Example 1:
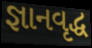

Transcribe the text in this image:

જ્ઞાનવૃદ્ધ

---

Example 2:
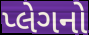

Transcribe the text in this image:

પ્લેગનો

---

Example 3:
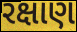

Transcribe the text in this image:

રક્ષાણ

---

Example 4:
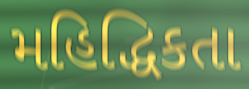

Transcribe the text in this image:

મહિદ્ધિકતા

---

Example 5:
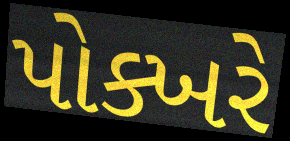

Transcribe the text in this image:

પોક્ખરે